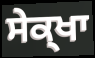
ਸੇਕ੍ਖਾ